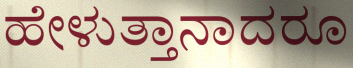
ಹೇಳುತ್ತಾನಾದರೂ